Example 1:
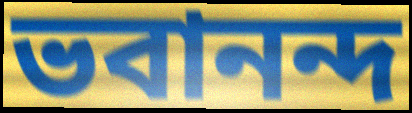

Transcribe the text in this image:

ভবানন্দ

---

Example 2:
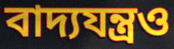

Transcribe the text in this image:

বাদ্যযন্ত্রও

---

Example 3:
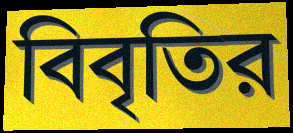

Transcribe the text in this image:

বিবৃতির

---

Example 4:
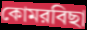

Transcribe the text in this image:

কোমরবিছা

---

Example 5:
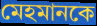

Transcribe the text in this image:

মেহমানকে